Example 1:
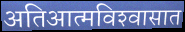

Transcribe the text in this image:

अतिआत्मविश्वासात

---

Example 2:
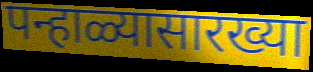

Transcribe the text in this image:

पन्हाळ्यासारख्या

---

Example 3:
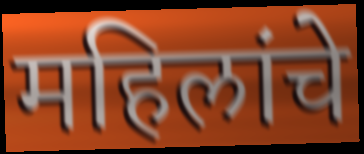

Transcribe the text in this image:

महिलांचे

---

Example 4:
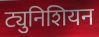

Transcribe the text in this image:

ट्युनिशियन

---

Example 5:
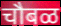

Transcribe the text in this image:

चौबळ